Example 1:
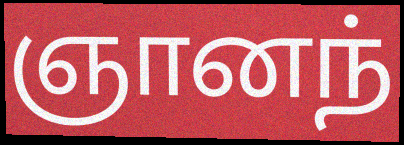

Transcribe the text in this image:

ஞானந்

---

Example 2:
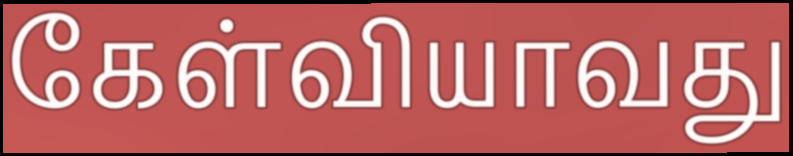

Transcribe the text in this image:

கேள்வியாவது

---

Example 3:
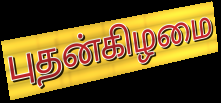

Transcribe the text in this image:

புதன்கிழமை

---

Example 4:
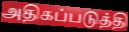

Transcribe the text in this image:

அதிகப்படுத்தி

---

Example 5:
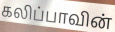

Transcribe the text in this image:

கலிப்பாவின்